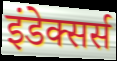
इंडेक्सर्स